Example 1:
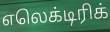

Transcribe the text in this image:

எலெக்டிரிக்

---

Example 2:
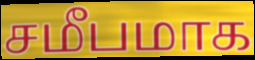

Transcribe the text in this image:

சமீபமாக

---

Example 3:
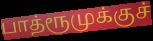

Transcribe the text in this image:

பாத்ரூமுக்குச்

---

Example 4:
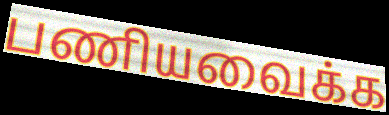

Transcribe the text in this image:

பணியவைக்க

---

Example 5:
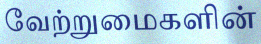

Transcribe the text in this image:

வேற்றுமைகளின்